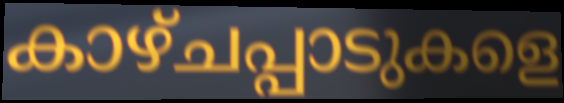
കാഴ്ചപ്പാടുകളെ